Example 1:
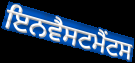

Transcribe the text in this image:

ਇਨਵੈਸਟਮੈਂਟਸ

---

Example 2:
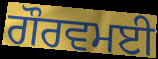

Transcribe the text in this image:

ਗੌਰਵਮਈ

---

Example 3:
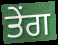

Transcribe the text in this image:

ਤੇਂਗ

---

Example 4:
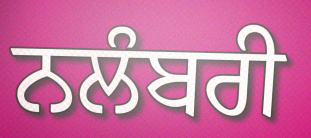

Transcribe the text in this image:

ਨਲੰਬਰੀ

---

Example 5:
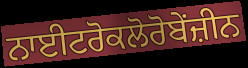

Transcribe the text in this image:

ਨਾਈਟਰੋਕਲੋਰੋਬੇਂਜ਼ੀਨ